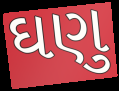
ઘણુ